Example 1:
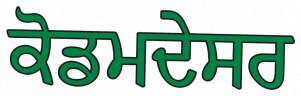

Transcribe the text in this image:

ਕੋਡਮਦੇਸਰ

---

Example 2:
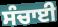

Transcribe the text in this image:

ਸੰਚਾਈ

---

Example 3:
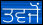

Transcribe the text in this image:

ਤਵਜੋਂ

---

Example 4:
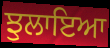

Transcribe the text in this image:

ਝੁਲਾਇਆ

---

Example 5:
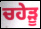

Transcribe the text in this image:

ਚਹੇੜੂ